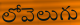
లోవెలుగు